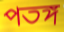
পতঙ্গ